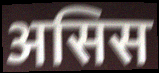
असिस